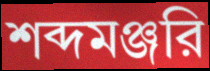
শব্দমঞ্জরি